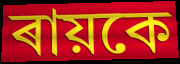
ৰায়কে